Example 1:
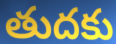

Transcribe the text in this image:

తుదకు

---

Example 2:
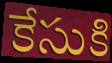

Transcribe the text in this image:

కేసుకి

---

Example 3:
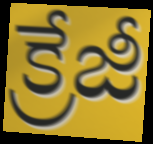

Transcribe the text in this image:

క్రేజీ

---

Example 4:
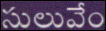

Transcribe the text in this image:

సులువేం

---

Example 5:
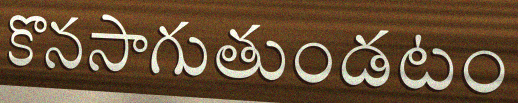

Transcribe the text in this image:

కొనసాగుతుండటం